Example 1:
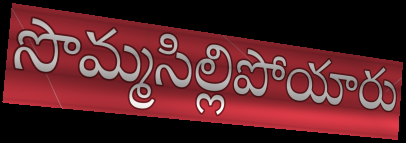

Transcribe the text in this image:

సొమ్మసిల్లిపోయారు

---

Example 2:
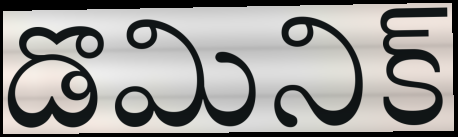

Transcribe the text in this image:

డొమినిక్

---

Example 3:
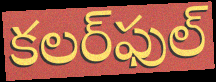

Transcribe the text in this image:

కలర్‌ఫుల్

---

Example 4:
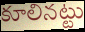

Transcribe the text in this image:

కూలినట్టు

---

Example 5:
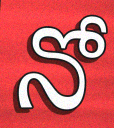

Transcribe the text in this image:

నో